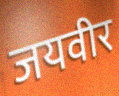
जयवीर